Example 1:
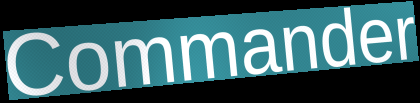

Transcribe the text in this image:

Commander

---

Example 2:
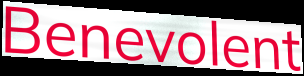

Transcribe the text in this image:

Benevolent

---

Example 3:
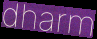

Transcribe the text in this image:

dharm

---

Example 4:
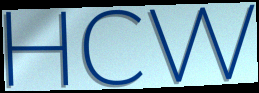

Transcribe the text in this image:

HCW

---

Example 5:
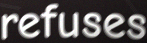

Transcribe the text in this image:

refuses